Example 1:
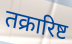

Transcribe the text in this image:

तक्रारिष्ट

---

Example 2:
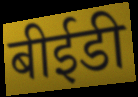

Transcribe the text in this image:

बीईडी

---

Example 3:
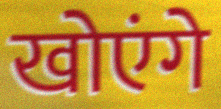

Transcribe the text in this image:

खोएंगे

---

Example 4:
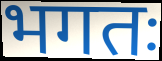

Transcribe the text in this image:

भगतः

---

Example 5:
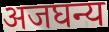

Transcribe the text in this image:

अजघन्य